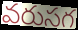
వరుసగ